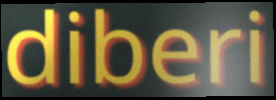
diberi